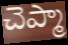
చెప్మా